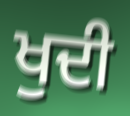
ਖੁਦੀ